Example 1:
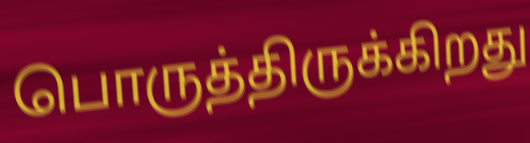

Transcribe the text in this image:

பொருத்திருக்கிறது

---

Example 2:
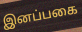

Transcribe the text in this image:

இனப்பகை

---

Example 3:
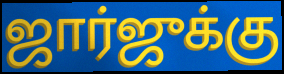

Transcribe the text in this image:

ஜார்ஜுக்கு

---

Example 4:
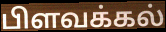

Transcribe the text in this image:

பிளவக்கல்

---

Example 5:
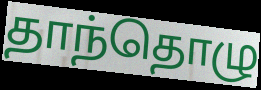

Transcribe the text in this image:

தாந்தொழு